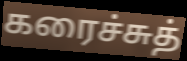
கரைச்சுத்